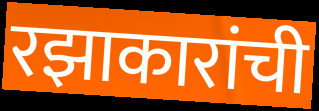
रझाकारांची